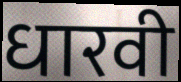
धारवी